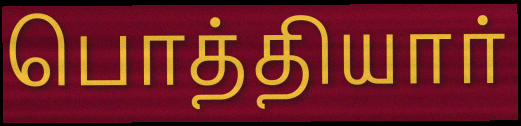
பொத்தியார்